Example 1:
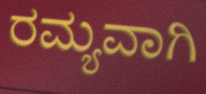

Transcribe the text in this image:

ರಮ್ಯವಾಗಿ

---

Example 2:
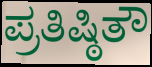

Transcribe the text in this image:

ಪ್ರತಿಷ್ಠಿತೌ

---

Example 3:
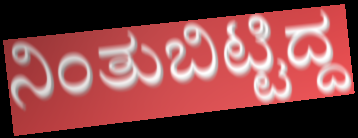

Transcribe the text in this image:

ನಿಂತುಬಿಟ್ಟಿದ್ದ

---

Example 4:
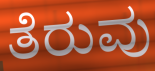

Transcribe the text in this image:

ತೆರುವು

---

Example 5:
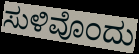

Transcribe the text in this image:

ಸುಳಿವೊಂದು